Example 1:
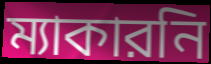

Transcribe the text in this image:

ম্যাকারনি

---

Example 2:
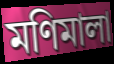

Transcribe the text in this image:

মণিমালা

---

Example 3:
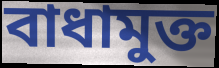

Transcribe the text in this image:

বাধামুক্ত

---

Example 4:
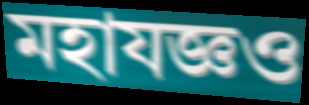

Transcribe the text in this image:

মহাযজ্ঞও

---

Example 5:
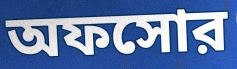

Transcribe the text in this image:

অফসোর